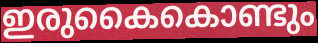
ഇരുകൈകൊണ്ടും